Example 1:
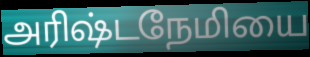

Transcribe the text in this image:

அரிஷ்டநேமியை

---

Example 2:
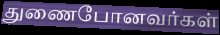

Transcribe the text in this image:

துணைபோனவர்கள்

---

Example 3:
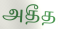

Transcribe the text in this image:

அதீத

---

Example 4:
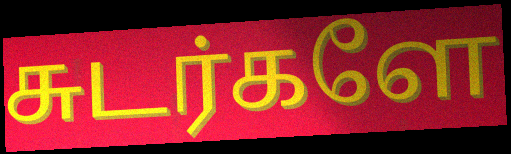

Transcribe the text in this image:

சுடர்களே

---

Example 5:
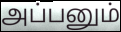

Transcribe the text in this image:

அப்பனும்